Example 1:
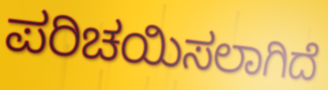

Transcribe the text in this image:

ಪರಿಚಯಿಸಲಾಗಿದೆ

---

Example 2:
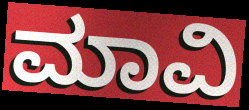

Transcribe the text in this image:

ಮಾವಿ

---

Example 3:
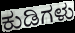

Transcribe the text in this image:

ಕುಡಿಗಳು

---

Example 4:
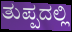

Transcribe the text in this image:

ತುಪ್ಪದಲ್ಲಿ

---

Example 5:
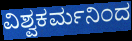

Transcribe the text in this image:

ವಿಶ್ವಕರ್ಮನಿಂದ